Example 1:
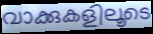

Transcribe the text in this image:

വാക്കുകളിലൂടെ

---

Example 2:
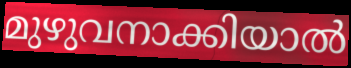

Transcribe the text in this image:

മുഴുവനാക്കിയാൽ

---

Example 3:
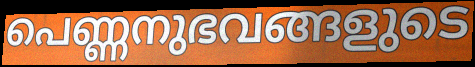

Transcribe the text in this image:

പെണ്ണനുഭവങ്ങളുടെ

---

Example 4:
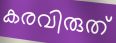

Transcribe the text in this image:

കരവിരുത്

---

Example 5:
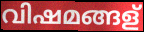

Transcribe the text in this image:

വിഷമങ്ങള്